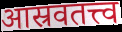
आस्रवतत्त्व